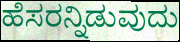
ಹೆಸರನ್ನಿಡುವುದು